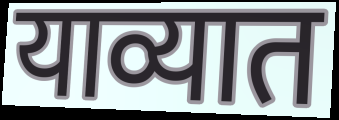
याव्यात